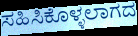
ಸಹಿಸಿಕೊಳ್ಳಲಾಗದ